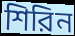
শিরিন